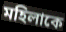
মহিলাকে